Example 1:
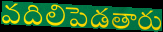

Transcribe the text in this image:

వదిలిపెడతారు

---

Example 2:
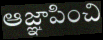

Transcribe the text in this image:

ఆజ్ఞాపించి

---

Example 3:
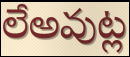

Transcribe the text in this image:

లేఅవుట్ల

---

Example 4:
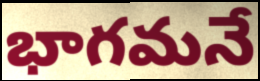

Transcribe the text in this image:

భాగమనే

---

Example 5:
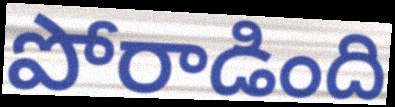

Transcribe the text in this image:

పోరాడింది